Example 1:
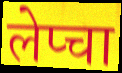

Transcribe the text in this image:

लेप्चा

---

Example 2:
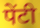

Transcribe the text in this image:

पेंटी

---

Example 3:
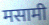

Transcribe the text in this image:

मसामी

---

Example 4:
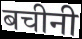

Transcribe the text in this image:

बचीनी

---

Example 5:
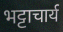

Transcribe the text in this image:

भट्टाचार्य